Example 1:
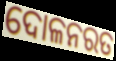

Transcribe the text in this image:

ଦୋଳନରତ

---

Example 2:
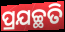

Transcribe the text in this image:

ପ୍ରଯଚ୍ଛତି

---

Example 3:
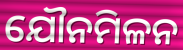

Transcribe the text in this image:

ଯୌନମିଳନ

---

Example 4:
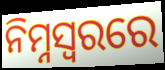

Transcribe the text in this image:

ନିମ୍ନସ୍ଵରରେ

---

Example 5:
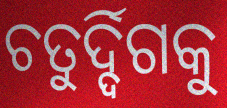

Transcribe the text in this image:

ଚତୁର୍ଦ୍ଦିଗକୁ